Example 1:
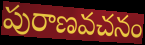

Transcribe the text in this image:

పురాణవచనం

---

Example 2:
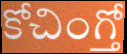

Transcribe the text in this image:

కోచింగ్తో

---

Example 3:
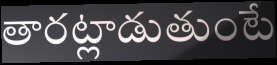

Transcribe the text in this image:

తారట్లాడుతుంటే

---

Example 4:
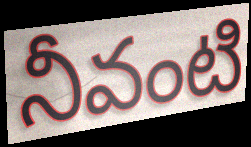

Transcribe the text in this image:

నీవంటి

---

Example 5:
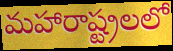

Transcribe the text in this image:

మహారాష్ట్రలలో